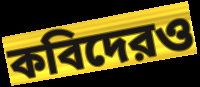
কবিদেরও